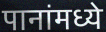
पानांमध्ये